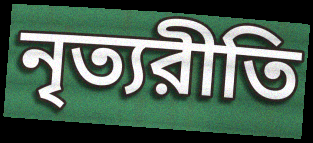
নৃত্যরীতি